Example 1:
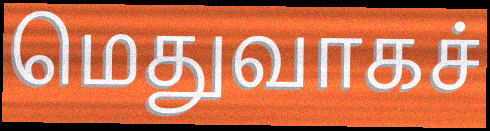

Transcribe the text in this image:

மெதுவாகச்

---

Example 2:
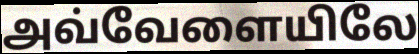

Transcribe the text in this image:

அவ்வேளையிலே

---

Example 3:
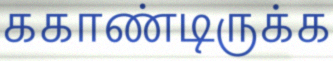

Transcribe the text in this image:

ககாண்டிருக்க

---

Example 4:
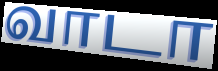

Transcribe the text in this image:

வாடா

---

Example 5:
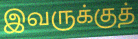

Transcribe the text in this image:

இவருக்குத்